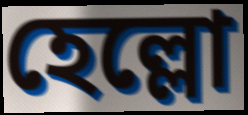
হেল্লো